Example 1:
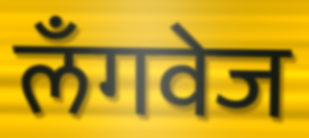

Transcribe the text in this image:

लॅंगवेज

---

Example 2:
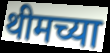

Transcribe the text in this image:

थीमच्या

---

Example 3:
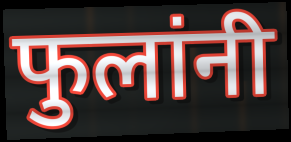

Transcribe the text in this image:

फुलांनी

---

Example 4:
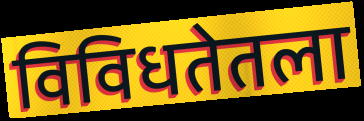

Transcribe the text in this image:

विविधतेतला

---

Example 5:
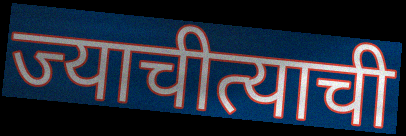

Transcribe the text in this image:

ज्याचीत्याची